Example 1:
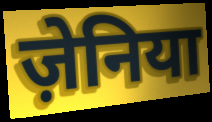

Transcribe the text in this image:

ज़ेनिया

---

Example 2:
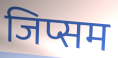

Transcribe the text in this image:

जिप्सम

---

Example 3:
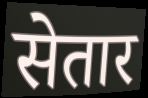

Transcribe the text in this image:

सेतार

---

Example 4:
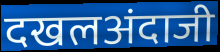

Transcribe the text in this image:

दखलअंदाजी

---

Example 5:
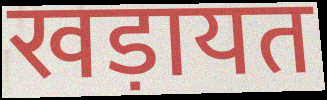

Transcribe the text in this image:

खड़ायत